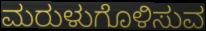
ಮರುಳುಗೊಳಿಸುವ